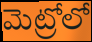
మెట్రోలో